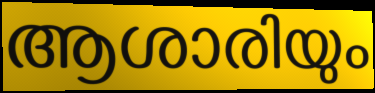
ആശാരിയും